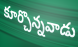
కూర్చొన్నవాడు